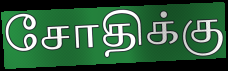
சோதிக்கு